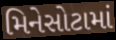
મિનેસોટામાં